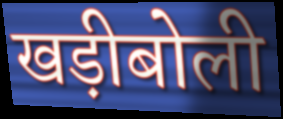
खड़ीबोली